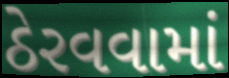
ઠેરવવામાં